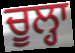
ਚੂਲ੍ਹਾ